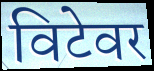
विटेवर